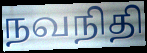
நவநிதி